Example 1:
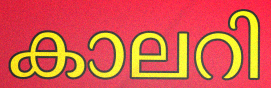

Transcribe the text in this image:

കാലറി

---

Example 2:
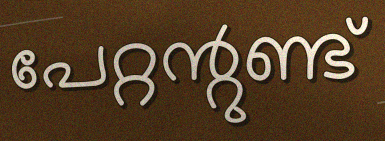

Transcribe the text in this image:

പേറ്റന്റുണ്ട്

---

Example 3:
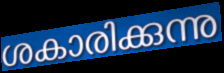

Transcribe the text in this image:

ശകാരിക്കുന്നു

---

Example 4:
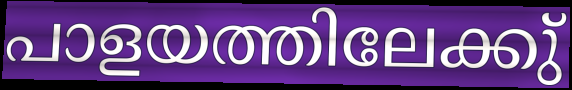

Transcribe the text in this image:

പാളയത്തിലേക്കു്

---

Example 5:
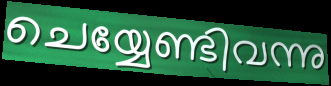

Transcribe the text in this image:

ചെയ്യേണ്ടിവന്നു